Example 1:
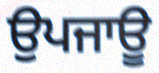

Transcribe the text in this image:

ਉਪਜਾਊ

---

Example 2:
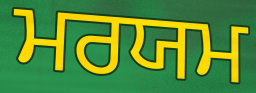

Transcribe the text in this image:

ਮਰਯਮ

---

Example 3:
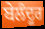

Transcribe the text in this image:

ਬੇਲੰਦੂਰ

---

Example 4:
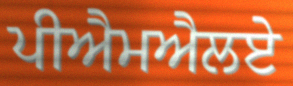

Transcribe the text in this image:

ਪੀਐਮਐਲਏ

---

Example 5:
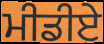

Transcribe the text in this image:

ਮੀਡੀਏ